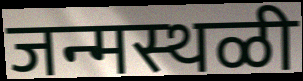
जन्मस्थळी